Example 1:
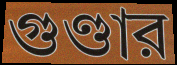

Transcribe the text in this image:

গুণ্ডার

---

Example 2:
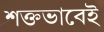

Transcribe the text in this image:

শক্তভাবেই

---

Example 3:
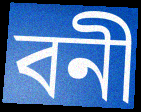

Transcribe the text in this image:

বনী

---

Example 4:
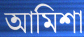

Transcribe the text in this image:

আমিশা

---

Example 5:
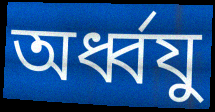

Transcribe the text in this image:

অর্ধ্বযু